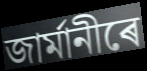
জাৰ্মানীৰে